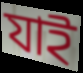
যাই